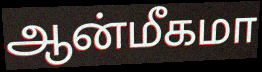
ஆன்மீகமா